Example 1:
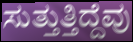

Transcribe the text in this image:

ಸುತ್ತುತ್ತಿದ್ದೆವು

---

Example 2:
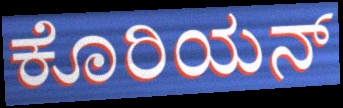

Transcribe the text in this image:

ಕೊರಿಯನ್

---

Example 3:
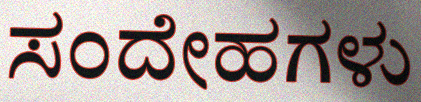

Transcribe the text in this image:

ಸಂದೇಹಗಳು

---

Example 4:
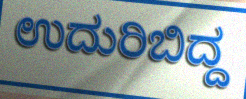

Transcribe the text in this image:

ಉದುರಿಬಿದ್ದ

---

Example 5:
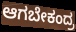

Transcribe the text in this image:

ಆಗಬೇಕಂದ್ರ